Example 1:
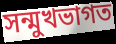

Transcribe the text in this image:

সন্মুখভাগত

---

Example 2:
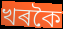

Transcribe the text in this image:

খৰকৈ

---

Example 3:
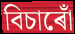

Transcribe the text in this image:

বিচাৰোঁ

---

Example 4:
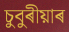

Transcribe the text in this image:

চুবুৰীয়াৰ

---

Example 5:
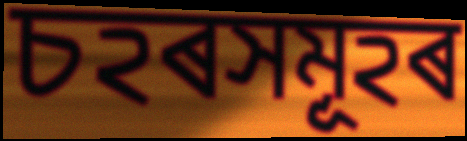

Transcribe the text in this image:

চহৰসমূহৰ